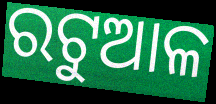
ରଟୁଆଳ